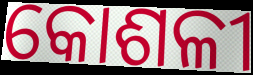
କୋଶଳୀ